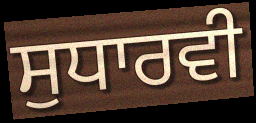
ਸੁਧਾਰਵੀ